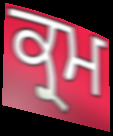
ਕ੍ਰਮ